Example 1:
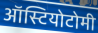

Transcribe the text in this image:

ऑस्टियोटोमी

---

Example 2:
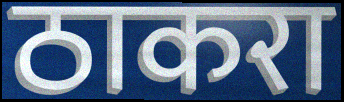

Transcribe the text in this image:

ठाकरा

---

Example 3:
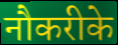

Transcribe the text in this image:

नौकरीके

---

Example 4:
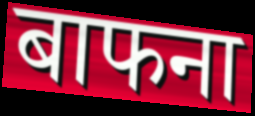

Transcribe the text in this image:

बाफना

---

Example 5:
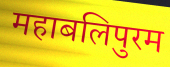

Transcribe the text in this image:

महाबलिपुरम